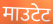
माउटेट